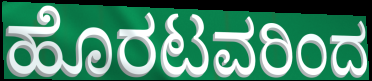
ಹೊರಟವರಿಂದ